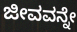
ಜೀವವನ್ನೇ